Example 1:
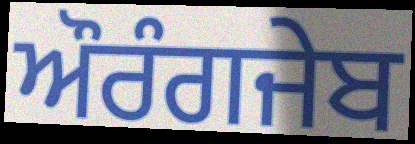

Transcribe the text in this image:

ਔਰੰਗਜੇਬ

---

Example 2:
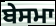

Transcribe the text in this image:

ਬੇਸਮਾ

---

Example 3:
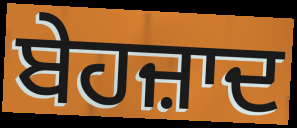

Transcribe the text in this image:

ਬੇਹਜ਼ਾਦ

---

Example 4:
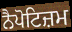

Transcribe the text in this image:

ਨੈਪੋਟਿਜ਼ਮ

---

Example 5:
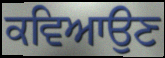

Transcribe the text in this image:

ਕਵਿਆਉਣ